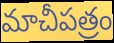
మాచీపత్రం